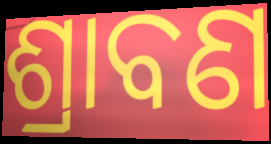
ଶ୍ରାବଣ